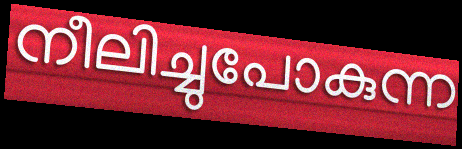
നീലിച്ചുപോകുന്ന